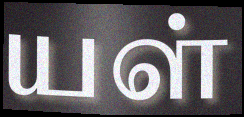
யள்